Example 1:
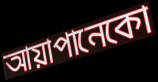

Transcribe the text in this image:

আয়াপানেকো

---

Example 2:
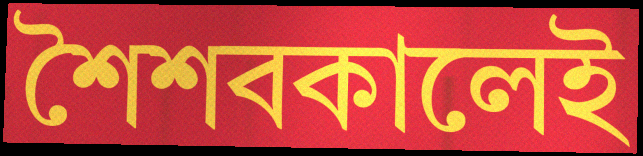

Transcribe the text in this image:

শৈশবকালেই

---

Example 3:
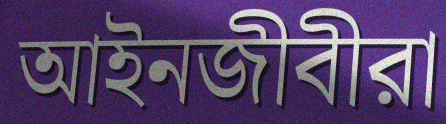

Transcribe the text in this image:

আইনজীবীরা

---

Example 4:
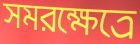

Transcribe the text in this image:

সমরক্ষেত্রে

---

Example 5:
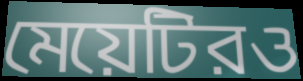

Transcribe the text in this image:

মেয়েটিরও